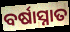
ବର୍ଷାସ୍ନାତ